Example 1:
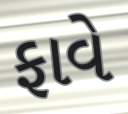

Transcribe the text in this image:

ફાવે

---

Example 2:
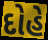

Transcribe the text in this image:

દોહે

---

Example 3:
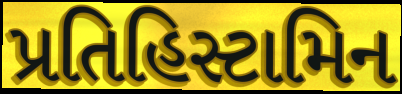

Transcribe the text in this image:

પ્રતિહિસ્ટામિન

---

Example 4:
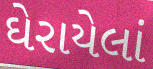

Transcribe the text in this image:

ઘેરાયેલાં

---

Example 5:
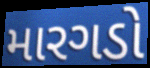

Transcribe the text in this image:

મારગડો